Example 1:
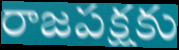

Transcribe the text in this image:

రాజపక్షకు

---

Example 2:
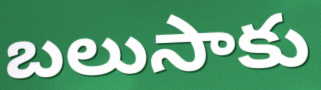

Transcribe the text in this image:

బలుసాకు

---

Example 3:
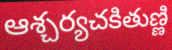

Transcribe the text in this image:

ఆశ్చర్యచకితుణ్ణి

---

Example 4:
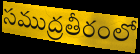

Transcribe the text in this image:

సముద్రతీరంలో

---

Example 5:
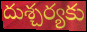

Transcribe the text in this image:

దుశ్చర్యకు